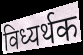
विध्यर्थक